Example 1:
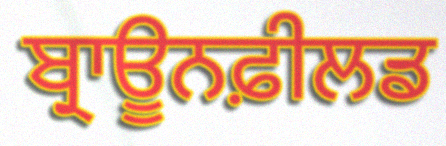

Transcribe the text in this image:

ਬ੍ਰਾਊਨਫ਼ੀਲਡ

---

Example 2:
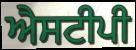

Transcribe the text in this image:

ਐਸਟੀਪੀ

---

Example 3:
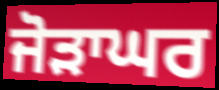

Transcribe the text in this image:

ਜੋੜਾਘਰ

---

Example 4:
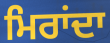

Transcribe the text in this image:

ਮਿਰਾਂਦਾ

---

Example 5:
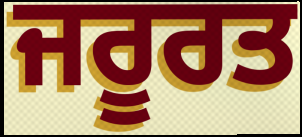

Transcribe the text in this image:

ਜਰੂਰਤ